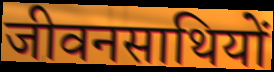
जीवनसाथियों